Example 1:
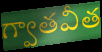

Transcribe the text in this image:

గ్వాతవీత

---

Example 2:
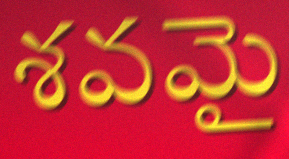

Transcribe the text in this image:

శవమై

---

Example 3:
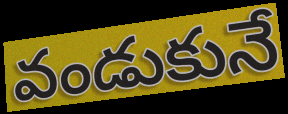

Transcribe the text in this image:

వండుకునే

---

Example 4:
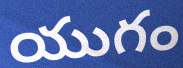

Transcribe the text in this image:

యుగం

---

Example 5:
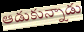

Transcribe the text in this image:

ఆడుకున్నాడు